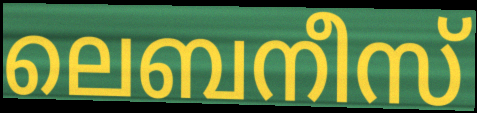
ലെബനീസ്